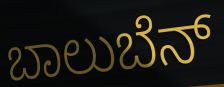
ಬಾಲುಬೆನ್